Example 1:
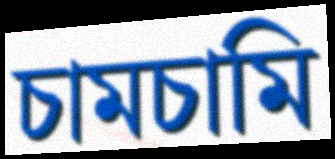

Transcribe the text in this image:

চামচামি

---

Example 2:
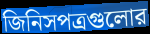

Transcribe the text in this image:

জিনিসপত্রগুলোর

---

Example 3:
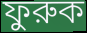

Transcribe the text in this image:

ফুরুক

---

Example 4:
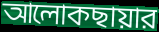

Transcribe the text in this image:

আলোকছায়ার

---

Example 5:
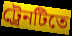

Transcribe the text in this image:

ট্রেনটিতে